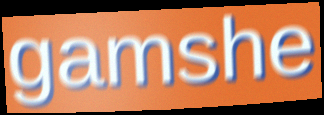
gamshe